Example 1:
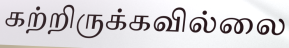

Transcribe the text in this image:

கற்றிருக்கவில்லை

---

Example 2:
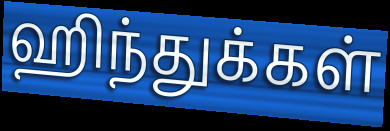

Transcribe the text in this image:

ஹிந்துக்கள்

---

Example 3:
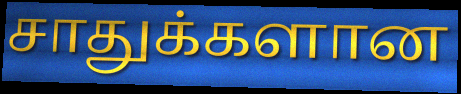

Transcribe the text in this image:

சாதுக்களான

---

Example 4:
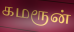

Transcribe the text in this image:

கமரூன்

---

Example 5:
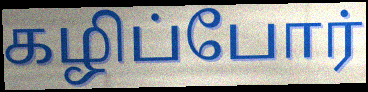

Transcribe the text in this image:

கழிப்போர்